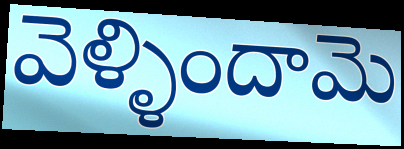
వెళ్ళిందామె